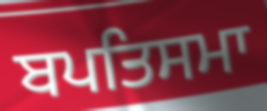
ਬਪਤਿਸਮਾ